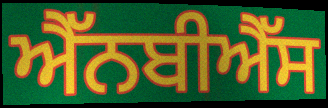
ਐੱਨਬੀਐੱਸ